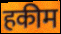
हकीम